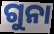
ଗୁନା